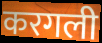
करगली